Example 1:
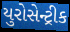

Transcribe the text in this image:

યુરોસેન્ટ્રીક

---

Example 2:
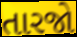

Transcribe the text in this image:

તારજો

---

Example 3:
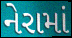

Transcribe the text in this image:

નેરામાં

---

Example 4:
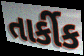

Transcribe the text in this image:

તાર્કીક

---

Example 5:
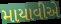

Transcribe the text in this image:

માયાવીએ